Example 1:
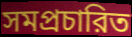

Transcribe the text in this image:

সমপ্রচারিত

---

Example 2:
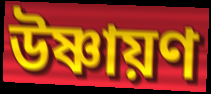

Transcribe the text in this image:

উষ্ণায়ণ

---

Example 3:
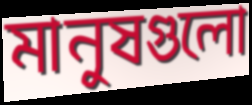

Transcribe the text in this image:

মানুষগুলো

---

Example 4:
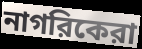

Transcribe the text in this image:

নাগরিকেরা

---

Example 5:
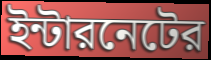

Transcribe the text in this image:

ইন্টারনেটের